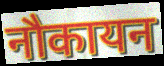
नौकायन